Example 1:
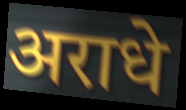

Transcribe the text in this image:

अराधे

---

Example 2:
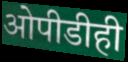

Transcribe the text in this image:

ओपीडीही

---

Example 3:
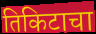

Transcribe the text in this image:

तिकिटाचा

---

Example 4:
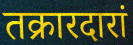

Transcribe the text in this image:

तक्रारदारां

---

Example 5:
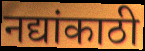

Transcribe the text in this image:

नद्यांकाठी